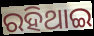
ରହିଥାଇ